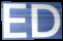
ED